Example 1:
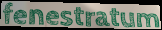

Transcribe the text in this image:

fenestratum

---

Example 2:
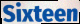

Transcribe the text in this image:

Sixteen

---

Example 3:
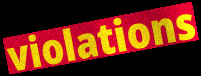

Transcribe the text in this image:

violations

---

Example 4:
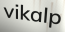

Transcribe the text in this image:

vikalp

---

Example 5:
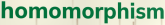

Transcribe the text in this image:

homomorphism